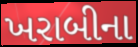
ખરાબીના